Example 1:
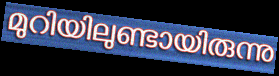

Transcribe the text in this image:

മുറിയിലുണ്ടായിരുന്നു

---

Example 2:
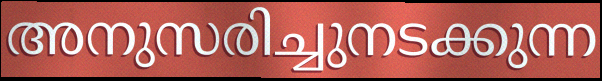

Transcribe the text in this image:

അനുസരിച്ചുനടക്കുന്ന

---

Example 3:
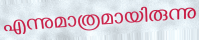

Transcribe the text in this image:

എന്നുമാത്രമായിരുന്നു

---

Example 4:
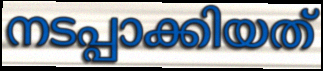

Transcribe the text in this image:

നടപ്പാക്കിയത്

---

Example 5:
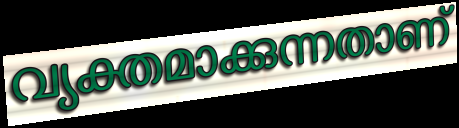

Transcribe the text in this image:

വ്യക്തമാക്കുന്നതാണ്